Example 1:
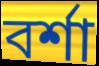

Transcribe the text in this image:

বর্শা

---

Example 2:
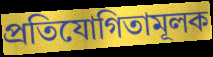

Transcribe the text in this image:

প্রতিযোগিতামূলক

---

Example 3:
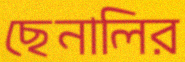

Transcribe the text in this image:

ছেনালির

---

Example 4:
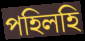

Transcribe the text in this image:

পহিলহি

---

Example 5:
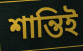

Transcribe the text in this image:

শান্তিই